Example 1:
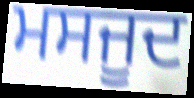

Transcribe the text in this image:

ਮਸਜੂਦ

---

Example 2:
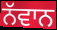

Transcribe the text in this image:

ਨੱਵਾਨ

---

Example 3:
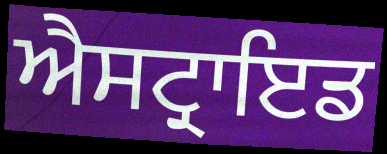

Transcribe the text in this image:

ਐਸਟ੍ਰਾਇਡ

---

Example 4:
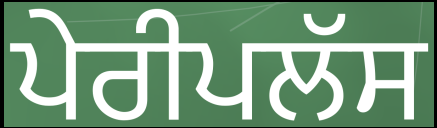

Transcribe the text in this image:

ਪੇਰੀਪਲੱਸ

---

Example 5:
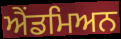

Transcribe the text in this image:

ਐਂਡਮਿਅਨ